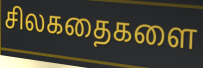
சிலகதைகளை